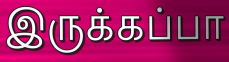
இருக்கப்பா